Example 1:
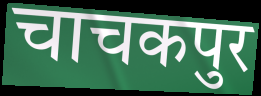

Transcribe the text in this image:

चाचकपुर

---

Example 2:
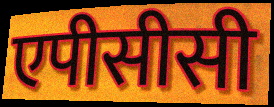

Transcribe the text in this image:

एपीसीसी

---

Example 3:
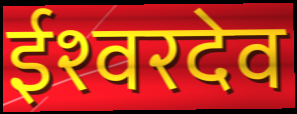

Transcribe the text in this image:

ईश्वरदेव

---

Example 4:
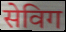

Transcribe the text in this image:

सेविग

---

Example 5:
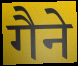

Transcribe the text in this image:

गैने